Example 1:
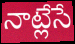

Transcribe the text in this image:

నాట్లేసే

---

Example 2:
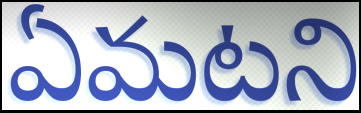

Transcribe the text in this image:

ఏమటని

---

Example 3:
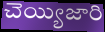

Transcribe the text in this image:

చెయ్యిజారి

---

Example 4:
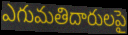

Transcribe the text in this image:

ఎగుమతిదారులపై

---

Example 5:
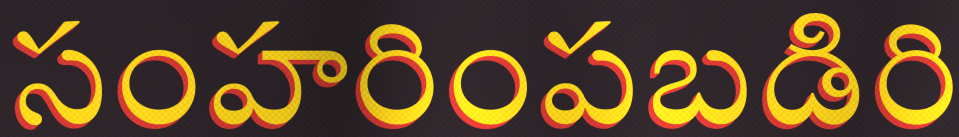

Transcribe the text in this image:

సంహరింపబడిరి